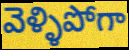
వెళ్ళిపోగా